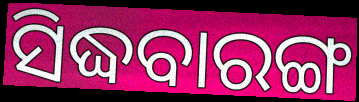
ସିଦ୍ଧବାରଙ୍ଗ